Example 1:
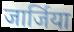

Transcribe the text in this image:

जार्जिया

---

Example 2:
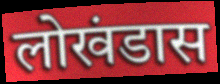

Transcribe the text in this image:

लोखंडास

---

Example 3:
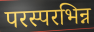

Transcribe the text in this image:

परस्परभिन्न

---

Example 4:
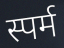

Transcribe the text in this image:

स्पर्म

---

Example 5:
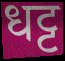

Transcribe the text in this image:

धट्ट